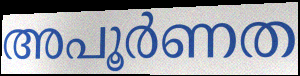
അപൂർണത